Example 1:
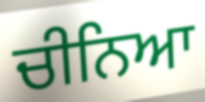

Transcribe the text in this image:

ਚੀਨਿਆ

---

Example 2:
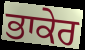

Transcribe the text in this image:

ਭਾਕੇਰ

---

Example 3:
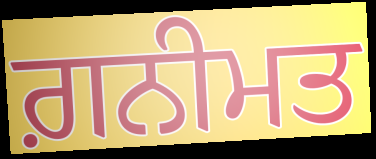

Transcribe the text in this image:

ਗ਼ਨੀਮਤ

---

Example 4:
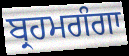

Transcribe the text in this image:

ਬ੍ਰਹਮਗੰਗਾ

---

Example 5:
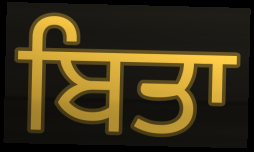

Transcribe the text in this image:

ਬਿਤਾ